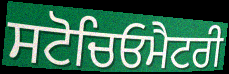
ਸਟੋਚਿਓਮੈਟਰੀ